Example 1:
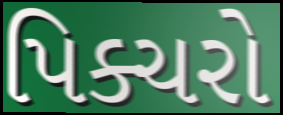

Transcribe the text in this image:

પિક્ચરો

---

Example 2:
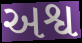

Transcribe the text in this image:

અશ્વ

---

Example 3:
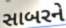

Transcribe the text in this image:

સાબરને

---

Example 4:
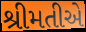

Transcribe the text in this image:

શ્રીમતીએ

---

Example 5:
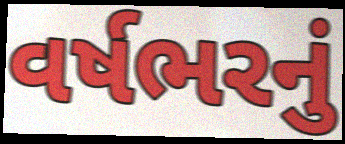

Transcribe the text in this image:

વર્ષભરનું